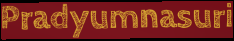
Pradyumnasuri